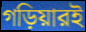
গড়িয়ারই